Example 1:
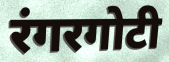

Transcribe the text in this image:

रंगरगोटी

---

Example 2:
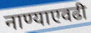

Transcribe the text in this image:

नाण्याएवढी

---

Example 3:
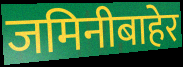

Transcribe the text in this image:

जमिनीबाहेर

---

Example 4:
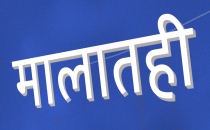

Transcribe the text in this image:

मालातही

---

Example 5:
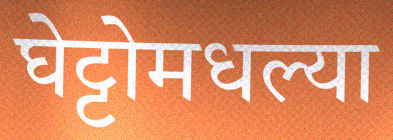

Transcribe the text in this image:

घेट्टोमधल्या